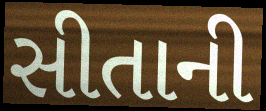
સીતાની